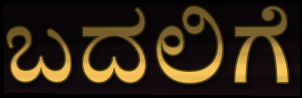
ಬದಲಿಗೆ